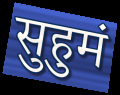
सुहुमं